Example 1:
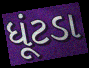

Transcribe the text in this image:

ધૂંટડા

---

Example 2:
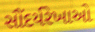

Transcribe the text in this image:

સૌંદર્યરેખાઓ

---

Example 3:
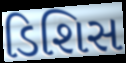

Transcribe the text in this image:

ડિશિસ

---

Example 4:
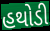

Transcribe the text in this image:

હથોડી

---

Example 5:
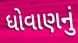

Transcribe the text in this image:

ધોવાણનું